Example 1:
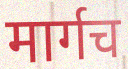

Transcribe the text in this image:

मार्गच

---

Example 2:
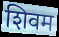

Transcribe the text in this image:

शिवम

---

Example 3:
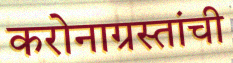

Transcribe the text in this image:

करोनाग्रस्तांची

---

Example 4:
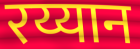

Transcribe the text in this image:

रय्यान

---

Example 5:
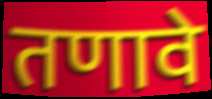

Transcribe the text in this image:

तणावे